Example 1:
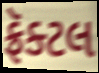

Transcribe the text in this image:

ફ્રૅક્ટલ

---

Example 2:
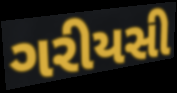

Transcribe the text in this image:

ગરીયસી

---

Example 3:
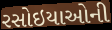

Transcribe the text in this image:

રસોઇયાઓની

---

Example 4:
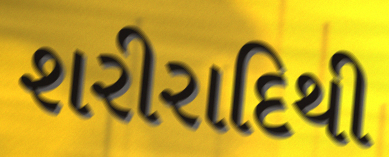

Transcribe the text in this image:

શરીરાદિથી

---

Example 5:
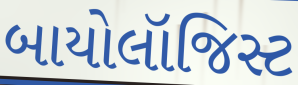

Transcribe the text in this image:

બાયોલૉજિસ્ટ